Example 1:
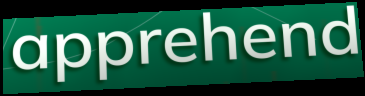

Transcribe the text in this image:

apprehend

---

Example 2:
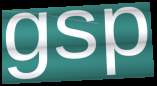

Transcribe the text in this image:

gsp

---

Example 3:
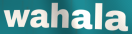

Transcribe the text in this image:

wahala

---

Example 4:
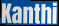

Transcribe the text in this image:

Kanthi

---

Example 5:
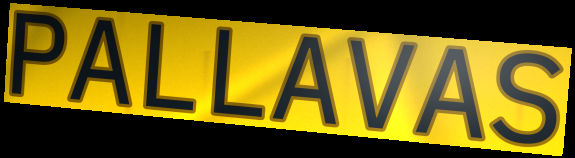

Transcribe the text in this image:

PALLAVAS